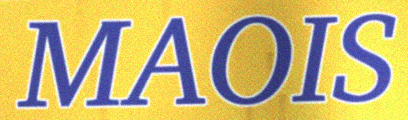
MAOIS